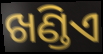
ଖଣ୍ଡିଏ